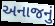
અનાજનું